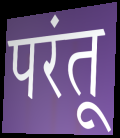
परंतू